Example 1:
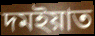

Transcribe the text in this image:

দমইয়াত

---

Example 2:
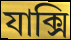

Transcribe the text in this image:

যাক্সি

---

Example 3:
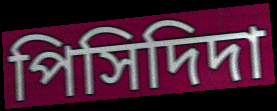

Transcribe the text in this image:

পিসিদিদা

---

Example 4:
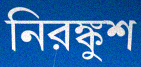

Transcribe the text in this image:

নিরঙ্কুশ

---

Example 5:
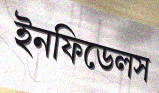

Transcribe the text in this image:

ইনফিডেলস